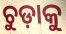
ଚୁଡ଼ାକୁ